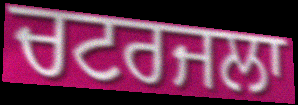
ਚਟਰਜਲਾ